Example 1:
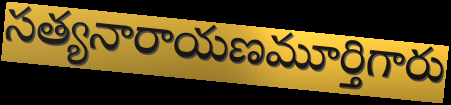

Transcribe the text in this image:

సత్యనారాయణమూర్తిగారు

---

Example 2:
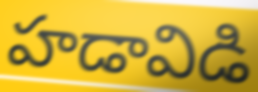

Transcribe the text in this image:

హడావిడి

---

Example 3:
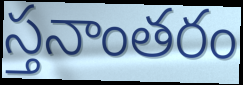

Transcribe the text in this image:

స్తనాంతరం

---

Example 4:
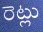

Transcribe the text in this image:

రెట్లు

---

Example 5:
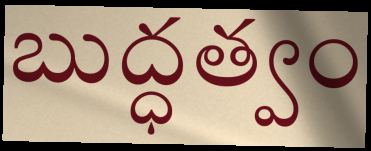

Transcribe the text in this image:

బుద్ధత్వం